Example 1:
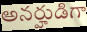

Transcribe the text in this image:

అనర్హుడిగా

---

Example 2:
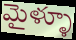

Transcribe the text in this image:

మైళ్ళూ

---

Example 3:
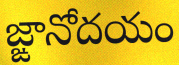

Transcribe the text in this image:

జ్ఙానోదయం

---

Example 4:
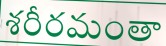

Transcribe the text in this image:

శరీరమంతా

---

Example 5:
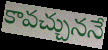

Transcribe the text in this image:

కావచ్చుననే